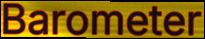
Barometer